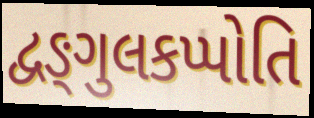
દ્વઙ્ગુલકપ્પોતિ